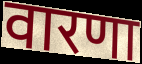
वारणा